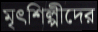
মৃৎশিল্পীদের